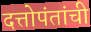
दत्तोपंतांची